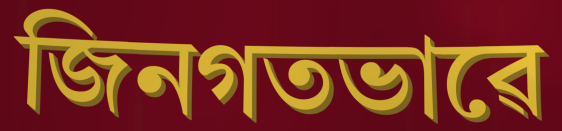
জিনগতভাৱে